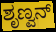
ಶೃಣ್ವನ್